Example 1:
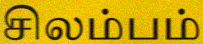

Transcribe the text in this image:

சிலம்பம்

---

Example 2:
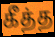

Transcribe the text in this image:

கீத்த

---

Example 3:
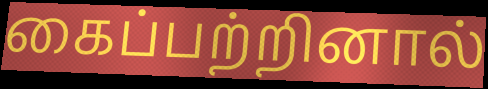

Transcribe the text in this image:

கைப்பற்றினால்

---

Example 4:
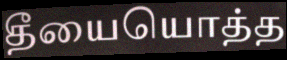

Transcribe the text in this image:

தீயையொத்த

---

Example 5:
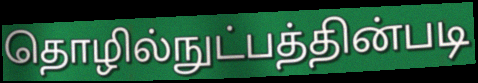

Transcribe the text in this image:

தொழில்நுட்பத்தின்படி